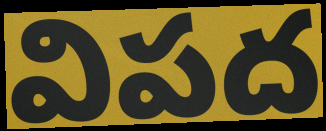
విపద